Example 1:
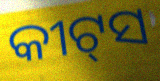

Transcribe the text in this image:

କୀଟ୍‌ସ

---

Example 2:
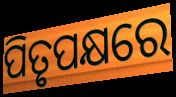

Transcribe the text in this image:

ପିତୃପକ୍ଷରେ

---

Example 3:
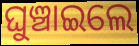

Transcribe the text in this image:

ଘୁଞ୍ଚାଇଲେ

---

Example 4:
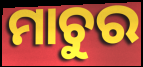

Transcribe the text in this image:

ମାଚୁର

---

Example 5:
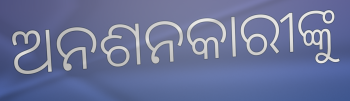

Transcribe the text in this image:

ଅନଶନକାରୀଙ୍କୁ